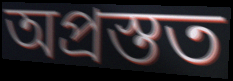
অপ্রস্তত